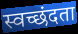
स्वच्छंदता